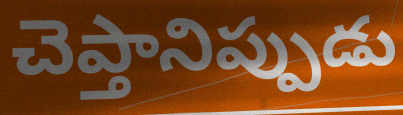
చెప్తానిప్పుడు